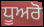
ਧੂਅਰੋ